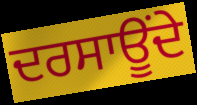
ਦਰਸਾਊਂਦੇ